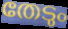
തേടും